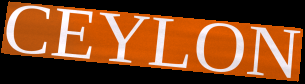
CEYLON